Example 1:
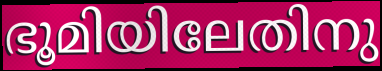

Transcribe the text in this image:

ഭൂമിയിലേതിനു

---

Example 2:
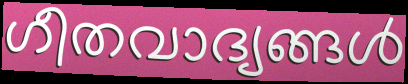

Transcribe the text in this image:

ഗീതവാദ്യങ്ങൾ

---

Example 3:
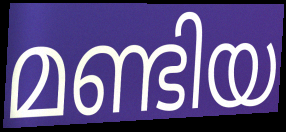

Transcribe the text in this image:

മണ്ടിയ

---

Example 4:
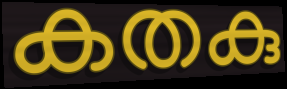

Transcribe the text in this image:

കതകു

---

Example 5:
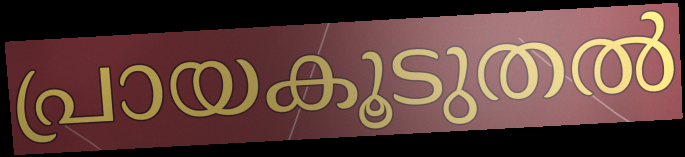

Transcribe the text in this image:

പ്രായകൂടുതൽ